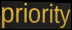
priority